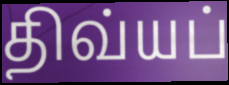
திவ்யப்